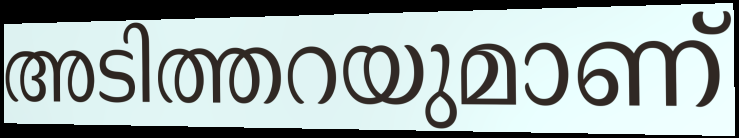
അടിത്തറയുമാണ്